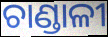
ଚାଣ୍ଡାଳୀ